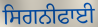
ਸਿਗਨੀਫਾਈ